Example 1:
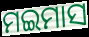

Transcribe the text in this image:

ମଇମାସ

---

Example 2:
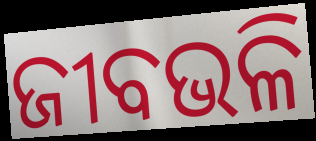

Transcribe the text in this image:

ଜୀବଭଳି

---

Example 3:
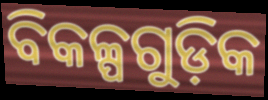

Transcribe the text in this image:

ବିକଳ୍ପଗୁଡ଼ିକ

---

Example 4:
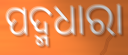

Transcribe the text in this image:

ପଦ୍ମଧାରା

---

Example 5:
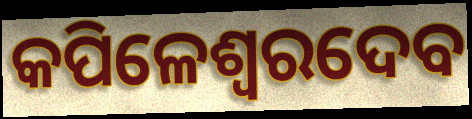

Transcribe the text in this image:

କପିଳେଶ୍ୱରଦେବ